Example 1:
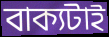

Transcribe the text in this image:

বাক্যটাই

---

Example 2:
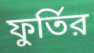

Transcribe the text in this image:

ফুর্তির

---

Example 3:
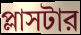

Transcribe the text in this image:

প্লাসটার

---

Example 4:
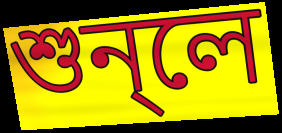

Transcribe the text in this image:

শুন্লে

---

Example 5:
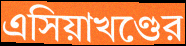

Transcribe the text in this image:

এসিয়াখণ্ডের